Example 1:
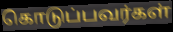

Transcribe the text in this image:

கொடுப்பவர்கள்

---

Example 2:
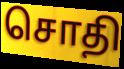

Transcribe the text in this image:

சொதி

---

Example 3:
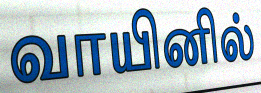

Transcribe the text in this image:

வாயினில்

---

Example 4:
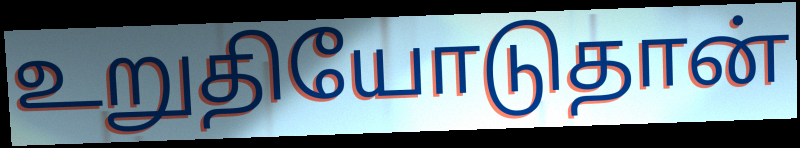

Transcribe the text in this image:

உறுதியோடுதான்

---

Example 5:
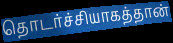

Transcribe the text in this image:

தொடர்ச்சியாகத்தான்